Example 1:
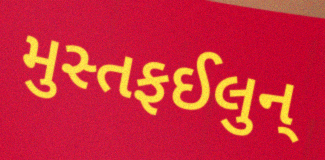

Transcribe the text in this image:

મુસ્તફઈલુન્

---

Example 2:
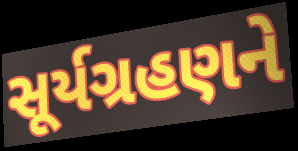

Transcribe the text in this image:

સૂર્યગ્રહણને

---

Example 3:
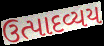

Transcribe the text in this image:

ઉત્પાદવ્યય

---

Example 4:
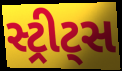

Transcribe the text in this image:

સ્ટ્રીટ્સ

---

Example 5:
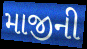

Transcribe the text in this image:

માજીની